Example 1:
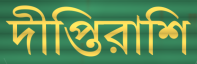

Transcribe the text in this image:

দীপ্তিরাশি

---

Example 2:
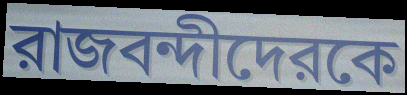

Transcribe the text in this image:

রাজবন্দীদেরকে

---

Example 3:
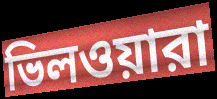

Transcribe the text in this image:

ভিলওয়ারা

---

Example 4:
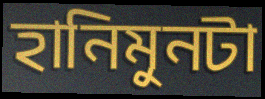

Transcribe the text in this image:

হানিমুনটা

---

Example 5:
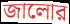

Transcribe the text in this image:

জালোর